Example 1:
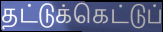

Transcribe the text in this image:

தட்டுக்கெட்டுப்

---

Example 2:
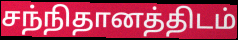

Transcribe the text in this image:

சந்நிதானத்திடம்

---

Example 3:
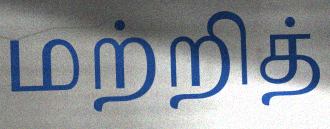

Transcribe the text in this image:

மற்றித்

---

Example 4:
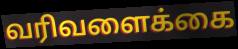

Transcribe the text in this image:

வரிவளைக்கை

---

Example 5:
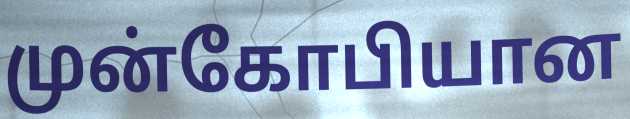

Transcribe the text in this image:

முன்கோபியான